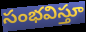
సంభవిస్తూ